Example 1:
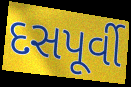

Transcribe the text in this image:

દસપૂર્વી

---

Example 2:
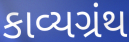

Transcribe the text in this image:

કાવ્યગ્રંથ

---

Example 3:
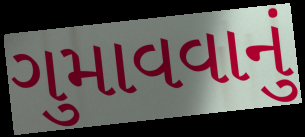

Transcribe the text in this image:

ગુમાવવાનું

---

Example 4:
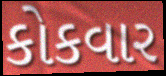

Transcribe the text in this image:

કોકવાર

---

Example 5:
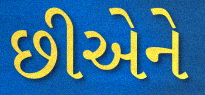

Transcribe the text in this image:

છીએને